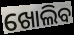
ଖୋଲିବ